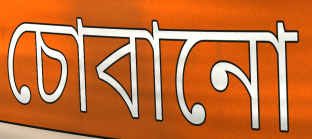
চোবানো